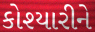
કોશ્યારીને